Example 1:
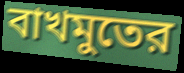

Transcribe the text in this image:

বাখমুতের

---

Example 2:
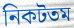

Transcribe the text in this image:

নিকটতম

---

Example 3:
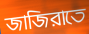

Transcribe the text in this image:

জাজিরাতে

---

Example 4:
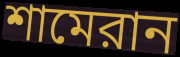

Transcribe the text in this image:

শামেরান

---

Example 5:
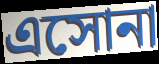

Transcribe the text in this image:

এসোনা